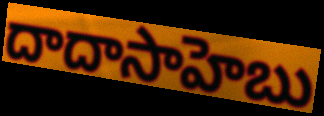
దాదాసాహెబు